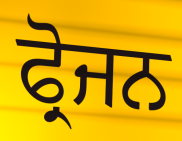
ਫ੍ਰੋਜਨ